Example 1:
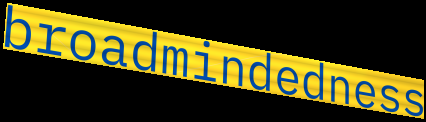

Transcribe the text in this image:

broadmindedness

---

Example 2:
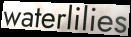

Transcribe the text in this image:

waterlilies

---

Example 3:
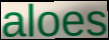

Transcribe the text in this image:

aloes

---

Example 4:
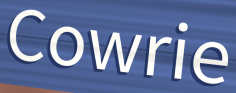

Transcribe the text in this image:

Cowrie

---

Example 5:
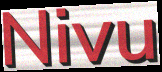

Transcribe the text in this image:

Nivu